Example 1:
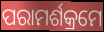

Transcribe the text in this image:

ପରାମର୍ଶକ୍ରମେ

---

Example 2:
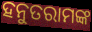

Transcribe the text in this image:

ହନୁତରାମଙ୍କ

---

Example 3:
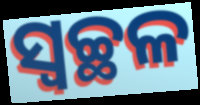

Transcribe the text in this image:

ସ୍ୱଚ୍ଛଳ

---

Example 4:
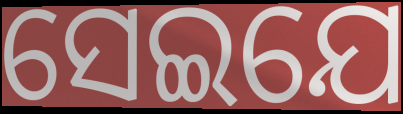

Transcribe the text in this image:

ସେଇଯେ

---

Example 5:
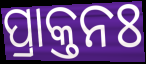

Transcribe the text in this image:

ପ୍ରାକ୍ତନଃ